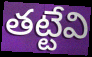
తట్టేవి